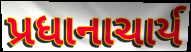
પ્રધાનાચાર્ય